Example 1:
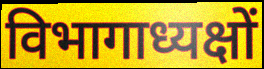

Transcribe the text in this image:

विभागाध्यक्षों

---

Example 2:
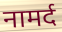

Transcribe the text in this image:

नामर्द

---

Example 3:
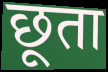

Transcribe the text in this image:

छूता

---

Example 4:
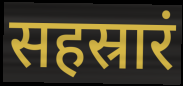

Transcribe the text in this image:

सहस्रारं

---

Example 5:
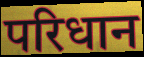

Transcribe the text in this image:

परिधान